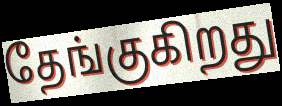
தேங்குகிறது